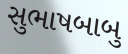
સુભાષબાબુ